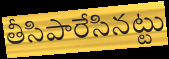
తీసిపారేసినట్టు